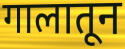
गालातून